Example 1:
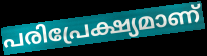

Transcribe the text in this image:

പരിപ്രേക്ഷ്യമാണ്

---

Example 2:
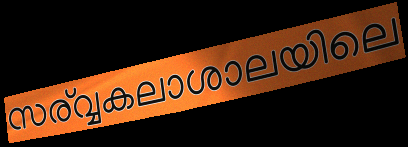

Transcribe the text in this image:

സര്വ്വകലാശാലയിലെ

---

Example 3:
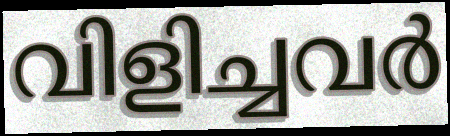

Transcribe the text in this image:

വിളിച്ചവർ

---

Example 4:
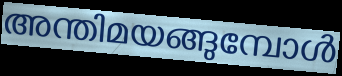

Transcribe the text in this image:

അന്തിമയങ്ങുമ്പോൾ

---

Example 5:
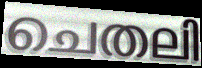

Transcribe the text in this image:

ചെതലി